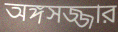
অঙ্গসজ্জার